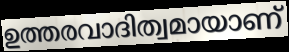
ഉത്തരവാദിത്വമായാണ്